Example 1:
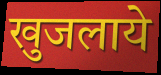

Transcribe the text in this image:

खुजलाये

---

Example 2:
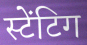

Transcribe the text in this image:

स्टेंटिग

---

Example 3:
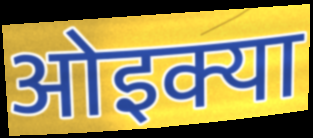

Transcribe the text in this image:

ओइक्या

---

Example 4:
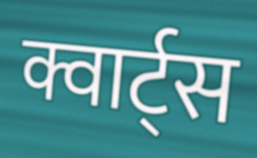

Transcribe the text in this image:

क्वार्ट्स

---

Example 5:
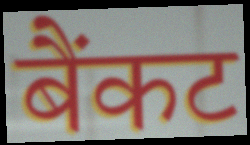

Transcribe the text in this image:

बैंकट